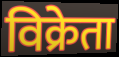
विक्रेता